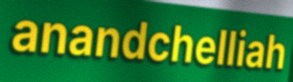
anandchelliah